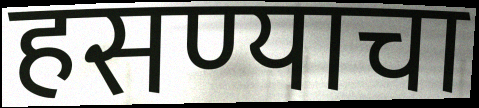
हसण्याचा